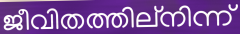
ജീവിതത്തില്നിന്ന്